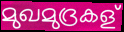
മുഖമുദ്രകള്